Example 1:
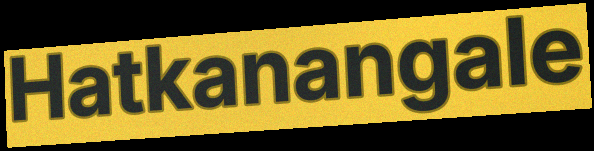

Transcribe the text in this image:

Hatkanangale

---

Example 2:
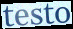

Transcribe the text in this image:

testo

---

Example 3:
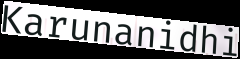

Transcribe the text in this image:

Karunanidhi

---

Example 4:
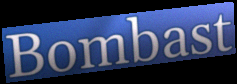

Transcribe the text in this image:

Bombast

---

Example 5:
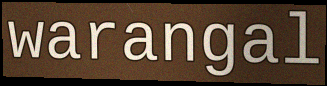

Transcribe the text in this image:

warangal